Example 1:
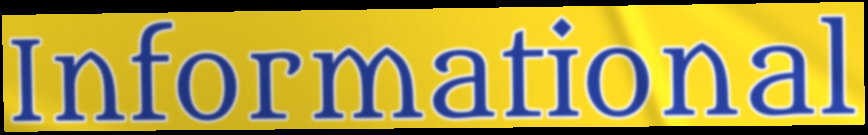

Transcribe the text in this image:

Informational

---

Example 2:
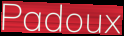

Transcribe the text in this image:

Padoux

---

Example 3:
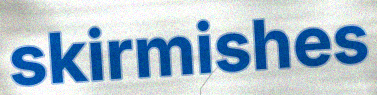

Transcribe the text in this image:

skirmishes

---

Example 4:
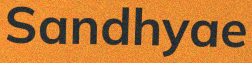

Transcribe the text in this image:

Sandhyae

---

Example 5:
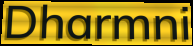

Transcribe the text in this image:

Dharmni